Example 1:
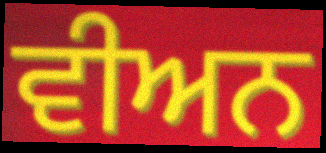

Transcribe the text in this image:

ਵੀਅਨ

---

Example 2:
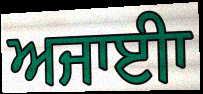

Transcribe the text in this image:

ਅਜਾਈਾ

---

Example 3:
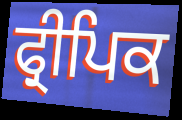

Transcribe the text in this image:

ਫ੍ਰੀਪਿਕ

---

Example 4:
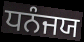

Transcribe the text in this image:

ਧਨੰਜਯ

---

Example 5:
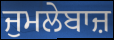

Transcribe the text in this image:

ਜੁਮਲੇਬਾਜ਼